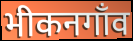
भीकनगाँव